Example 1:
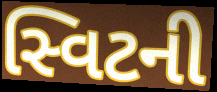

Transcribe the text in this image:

સ્વિટની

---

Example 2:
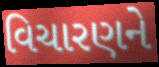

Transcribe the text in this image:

વિચારણને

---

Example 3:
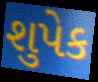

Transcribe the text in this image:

શુપેક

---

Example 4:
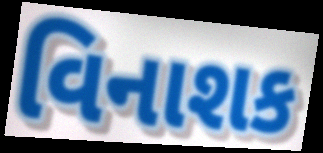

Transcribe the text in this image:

વિનાશક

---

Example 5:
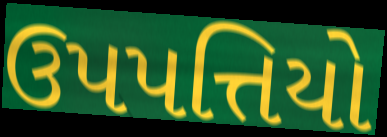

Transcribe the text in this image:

ઉપપત્તિયો